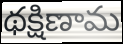
థక్షిణామ